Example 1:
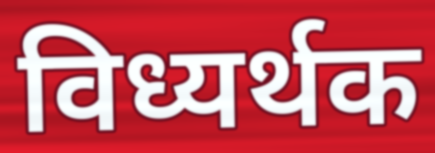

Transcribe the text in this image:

विध्यर्थक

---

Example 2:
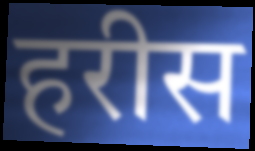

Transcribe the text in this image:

हरीस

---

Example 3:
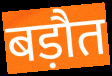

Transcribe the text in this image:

बड़ौत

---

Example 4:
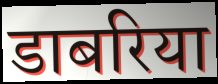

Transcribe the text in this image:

डाबरिया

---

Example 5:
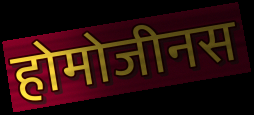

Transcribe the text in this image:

होमोजीनस